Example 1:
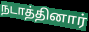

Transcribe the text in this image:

நடாத்தினார்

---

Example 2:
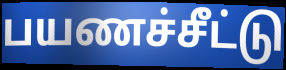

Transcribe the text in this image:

பயணச்சீட்டு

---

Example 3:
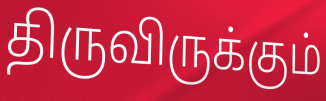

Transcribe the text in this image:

திருவிருக்கும்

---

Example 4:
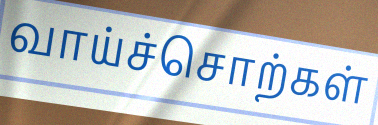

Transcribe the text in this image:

வாய்ச்சொற்கள்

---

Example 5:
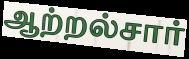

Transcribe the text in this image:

ஆற்றல்சார்